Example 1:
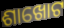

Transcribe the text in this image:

ଶାଖୋଟ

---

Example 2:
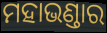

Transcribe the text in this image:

ମହାଭଣ୍ଡାର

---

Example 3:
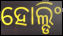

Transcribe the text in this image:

ହୋଲ୍ଡିଂ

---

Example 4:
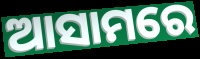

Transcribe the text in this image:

ଆସାମରେ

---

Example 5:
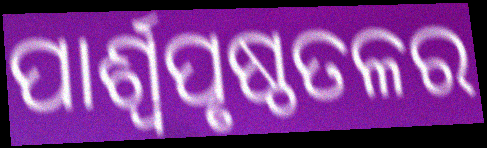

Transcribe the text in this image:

ପାର୍ଶ୍ଵପୃଷ୍ଠତଳର